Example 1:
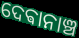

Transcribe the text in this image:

ଦେଵାନାଞ୍ଚ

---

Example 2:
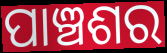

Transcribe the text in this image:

ପାଞ୍ଚଶର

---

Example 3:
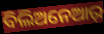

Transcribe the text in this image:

ବିଲିଅନେଆର୍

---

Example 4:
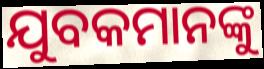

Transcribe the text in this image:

ଯୁବକମାନଙ୍କୁ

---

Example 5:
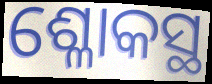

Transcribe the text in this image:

ଶ୍ଳୋକସ୍ଥ